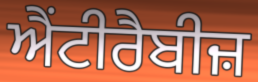
ਐਂਟੀਰੈਬੀਜ਼